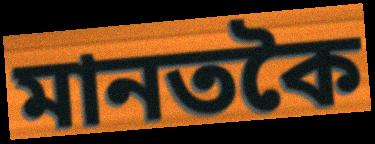
মানতকৈ